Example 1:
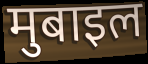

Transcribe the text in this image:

मुबाइल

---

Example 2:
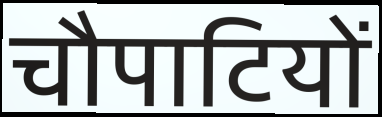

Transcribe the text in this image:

चौपाटियों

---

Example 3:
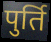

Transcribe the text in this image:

पुर्ति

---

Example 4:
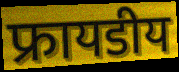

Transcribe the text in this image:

फ्रायडीय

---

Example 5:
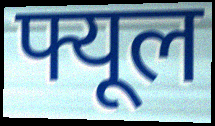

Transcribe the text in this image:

फ्यूल